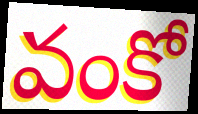
వంకో